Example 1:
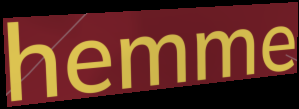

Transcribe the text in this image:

hemme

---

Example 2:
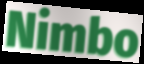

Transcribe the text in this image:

Nimbo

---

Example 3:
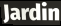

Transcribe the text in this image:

Jardin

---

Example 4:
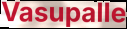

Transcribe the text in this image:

Vasupalle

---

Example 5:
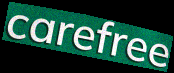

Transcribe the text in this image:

carefree